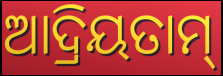
ଆଦ୍ରିୟତାମ୍